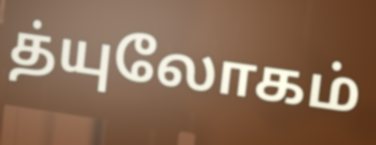
த்யுலோகம்